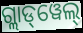
ଗ୍ଲାଡ୍‌ୱେଲ୍